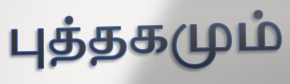
புத்தகமும்